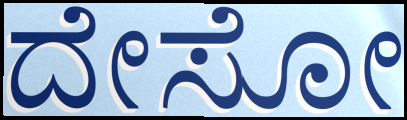
ದೇಸೋ